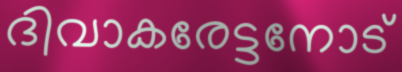
ദിവാകരേട്ടനോട്